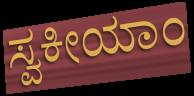
ಸ್ವಕೀಯಾಂ